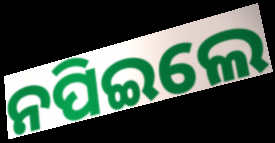
ନପିଇଲେ